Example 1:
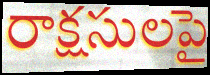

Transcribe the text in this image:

రాక్షసులపై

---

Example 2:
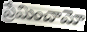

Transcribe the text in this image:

ప్రేమించామో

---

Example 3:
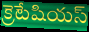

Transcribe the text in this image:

క్రెటేషియస్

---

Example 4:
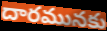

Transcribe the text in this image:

దారమునకు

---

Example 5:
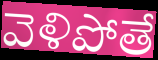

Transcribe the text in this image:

వెళిపోతే